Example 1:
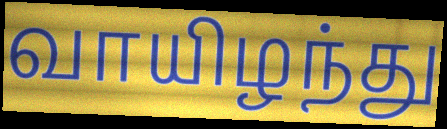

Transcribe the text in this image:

வாயிழந்து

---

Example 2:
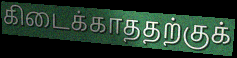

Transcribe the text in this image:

கிடைக்காததற்குக்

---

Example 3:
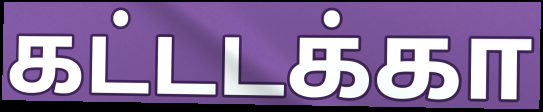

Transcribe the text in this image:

கட்டடக்கா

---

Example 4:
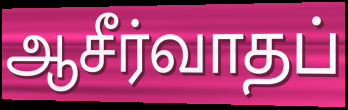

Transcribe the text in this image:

ஆசீர்வாதப்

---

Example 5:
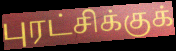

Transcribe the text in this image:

புரட்சிக்குக்